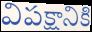
విపక్షానికి